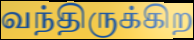
வந்திருக்கிற